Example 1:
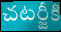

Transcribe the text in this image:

చటర్జీకి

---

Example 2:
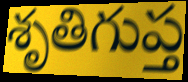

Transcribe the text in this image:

శృతిగుప్త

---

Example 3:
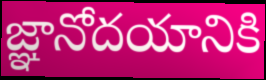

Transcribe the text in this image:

జ్ఞానోదయానికి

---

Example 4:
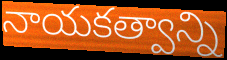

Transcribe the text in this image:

నాయకత్వాన్ని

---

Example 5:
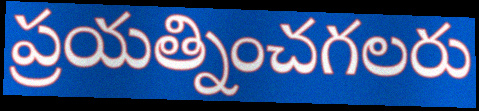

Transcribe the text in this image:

ప్రయత్నించగలరు